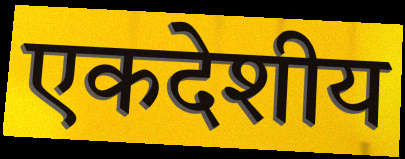
एकदेशीय